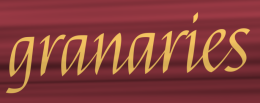
granaries